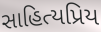
સાહિત્યપ્રિય